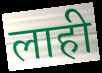
लाही